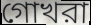
গোখরা